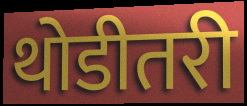
थोडीतरी